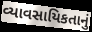
વ્યાવસાયિકતાનું